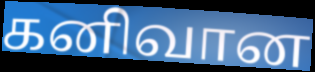
கனிவான